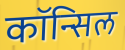
कॉन्सिल